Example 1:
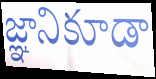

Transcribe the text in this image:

జ్ఞానికూడా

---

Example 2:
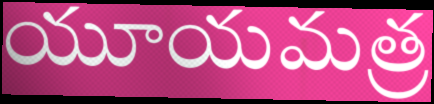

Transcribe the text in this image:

యూయమత్ర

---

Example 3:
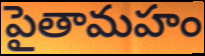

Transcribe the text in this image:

పైతామహం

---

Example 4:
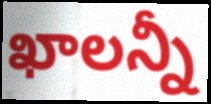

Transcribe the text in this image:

ఖాలన్నీ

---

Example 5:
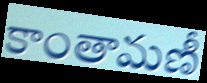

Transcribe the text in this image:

కాంతామణీ